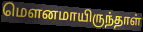
மௌனமாயிருந்தாள்